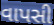
વાપસી